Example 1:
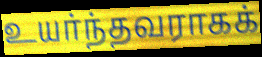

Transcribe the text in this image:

உயர்ந்தவராகக்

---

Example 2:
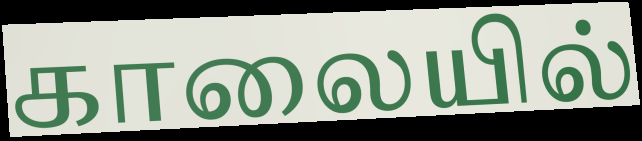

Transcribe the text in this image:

காலையில்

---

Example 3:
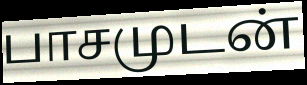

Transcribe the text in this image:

பாசமுடன்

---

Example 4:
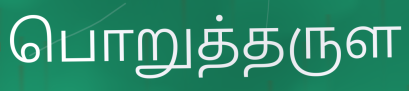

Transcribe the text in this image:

பொறுத்தருள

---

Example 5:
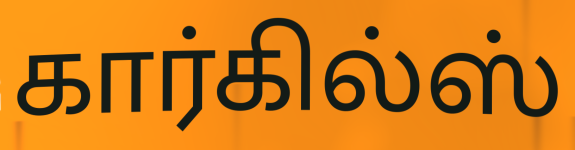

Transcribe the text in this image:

கார்கில்ஸ்